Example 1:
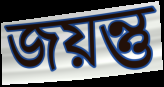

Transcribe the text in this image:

জয়ন্তু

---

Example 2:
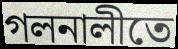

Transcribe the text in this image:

গলনালীতে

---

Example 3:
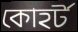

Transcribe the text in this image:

কোহর্ট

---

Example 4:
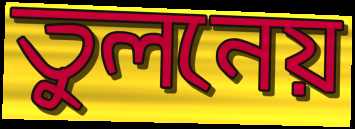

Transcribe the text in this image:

তুলনেয়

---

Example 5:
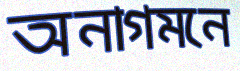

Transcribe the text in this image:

অনাগমনে